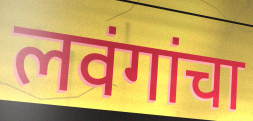
लवंगांचा